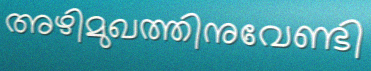
അഴിമുഖത്തിനുവേണ്ടി